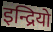
इन्द्रियो